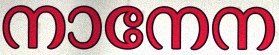
നാനേന